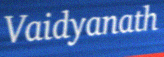
Vaidyanath